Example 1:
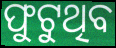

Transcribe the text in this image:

ଫୁଟୁଥିବ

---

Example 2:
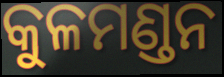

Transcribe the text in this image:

କୁଳମଣ୍ଡନ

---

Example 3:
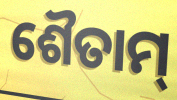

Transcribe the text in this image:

ଶୈତାମ୍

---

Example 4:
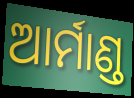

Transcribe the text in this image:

ଆର୍ମାଣ୍ଡ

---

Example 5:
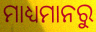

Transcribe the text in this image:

ମାଧ୍ୟମାନରୁ